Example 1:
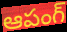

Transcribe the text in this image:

ఆపంగ్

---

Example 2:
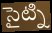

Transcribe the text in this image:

సైట్ని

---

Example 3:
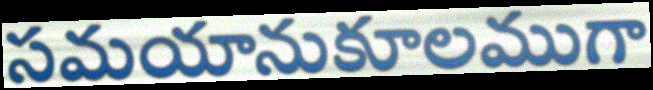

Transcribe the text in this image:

సమయానుకూలముగా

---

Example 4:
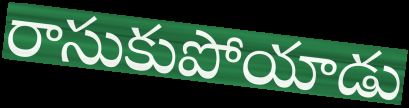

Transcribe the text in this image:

రాసుకుపోయాడు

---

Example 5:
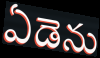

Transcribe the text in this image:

ఏడెను